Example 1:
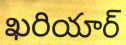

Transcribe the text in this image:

ఖరియార్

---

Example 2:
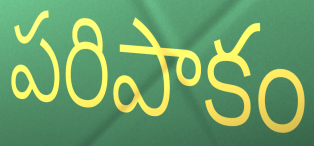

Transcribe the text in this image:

పరిపాకం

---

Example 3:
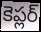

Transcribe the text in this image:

కెప్లర్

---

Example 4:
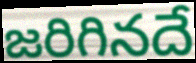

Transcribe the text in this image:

జరిగినదే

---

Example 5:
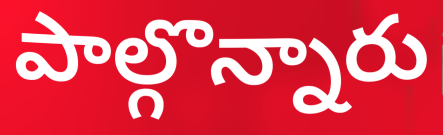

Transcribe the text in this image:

పాల్గొన్నారు